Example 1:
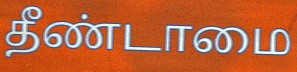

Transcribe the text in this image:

தீண்டாமை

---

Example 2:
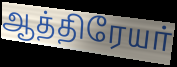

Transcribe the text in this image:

ஆத்திரேயர்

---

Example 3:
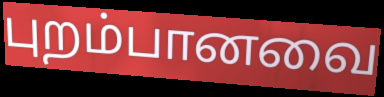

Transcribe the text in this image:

புறம்பானவை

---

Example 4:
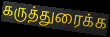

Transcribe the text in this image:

கருத்துரைக்க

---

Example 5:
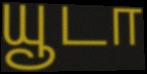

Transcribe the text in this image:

யூடா